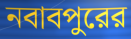
নবাবপুরের